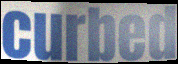
curbed